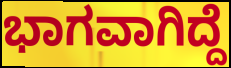
ಭಾಗವಾಗಿದ್ದೆ